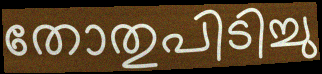
തോതുപിടിച്ചു